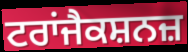
ਟਰਾਂਜੈਕਸ਼ਨਜ਼